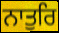
ਨਾਤੁਰਿ